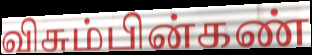
விசும்பின்கண்